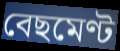
বেছমেণ্ট